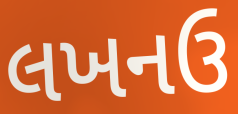
લખનઉ